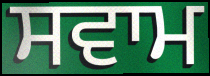
ਸਵਾਮ